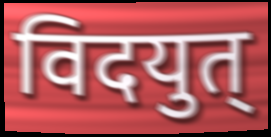
विदयुत्